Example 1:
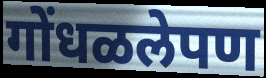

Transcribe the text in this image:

गोंधळलेपण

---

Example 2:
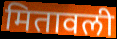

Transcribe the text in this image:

मितावली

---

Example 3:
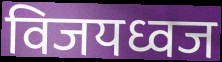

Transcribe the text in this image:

विजयध्वज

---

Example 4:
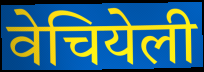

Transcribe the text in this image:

वेचियेली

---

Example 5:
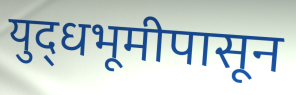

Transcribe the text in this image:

युद्धभूमीपासून